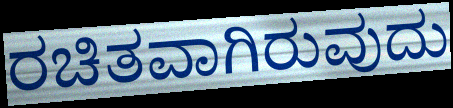
ರಚಿತವಾಗಿರುವುದು